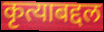
कृत्याबद्दल